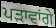
ਪੜਾਵਾਂਗੇ